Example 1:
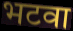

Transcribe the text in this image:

भटवा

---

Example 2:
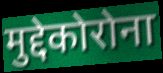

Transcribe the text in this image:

मुद्देकोरोना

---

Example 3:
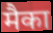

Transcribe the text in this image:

मैका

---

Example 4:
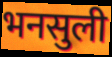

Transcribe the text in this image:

भनसुली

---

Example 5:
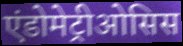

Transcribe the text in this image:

एंडोमेट्रीओसिस